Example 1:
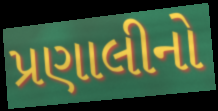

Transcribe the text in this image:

પ્રણાલીનો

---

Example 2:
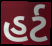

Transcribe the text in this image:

હર્ટ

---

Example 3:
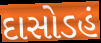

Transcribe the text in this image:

દાસોઽહં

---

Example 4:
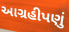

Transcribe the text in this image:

આગ્રહીપણું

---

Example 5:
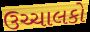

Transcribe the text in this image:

ઉચ્ચાલકો